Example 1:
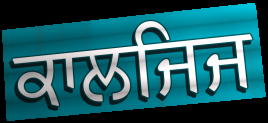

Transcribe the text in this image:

ਕਾਲਜਿਜ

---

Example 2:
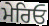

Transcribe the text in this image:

ਮੇਰਿਓ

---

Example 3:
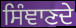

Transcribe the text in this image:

ਸਿੰਞਾਣਦੇ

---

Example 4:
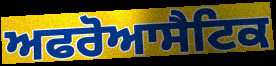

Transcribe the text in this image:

ਅਫਰੋਆਸੈਟਿਕ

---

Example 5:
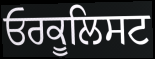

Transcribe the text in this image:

ਓਰਕੂਲਿਸਟ